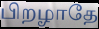
பிறழாதே